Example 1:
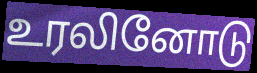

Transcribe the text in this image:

உரலினோடு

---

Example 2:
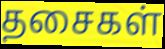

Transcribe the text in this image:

தசைகள்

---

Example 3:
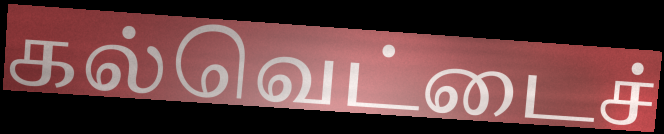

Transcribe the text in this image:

கல்வெட்டைச்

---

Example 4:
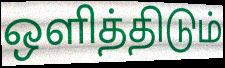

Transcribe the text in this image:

ஒளித்திடும்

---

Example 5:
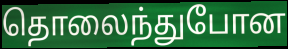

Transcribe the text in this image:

தொலைந்துபோன